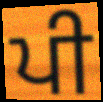
ਪੀ